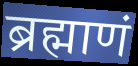
ब्रह्माणं